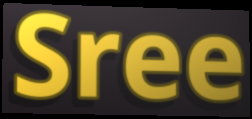
Sree